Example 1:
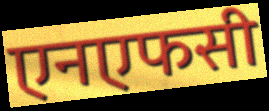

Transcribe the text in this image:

एनएफसी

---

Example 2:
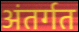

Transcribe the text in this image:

अंतर्गत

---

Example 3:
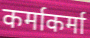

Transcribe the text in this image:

कर्माकर्मा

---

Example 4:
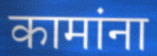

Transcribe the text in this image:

कामांना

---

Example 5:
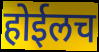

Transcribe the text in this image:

होईलच